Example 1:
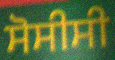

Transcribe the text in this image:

ਸੋਸੀਸੀ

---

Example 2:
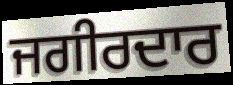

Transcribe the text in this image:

ਜਗੀਰਦਾਰ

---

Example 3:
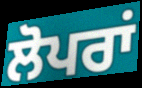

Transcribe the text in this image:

ਲੋਪਰਾਂ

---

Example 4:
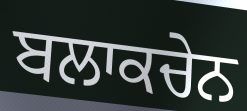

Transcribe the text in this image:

ਬਲਾਕਚੇਨ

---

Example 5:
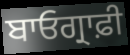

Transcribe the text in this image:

ਬਾਓਗ੍ਰਾਫ਼ੀ